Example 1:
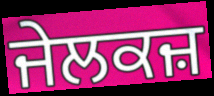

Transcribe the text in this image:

ਜੇਲਕਜ਼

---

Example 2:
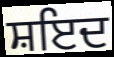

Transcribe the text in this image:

ਸ਼ਇਦ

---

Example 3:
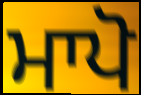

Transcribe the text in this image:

ਮਾਪੋ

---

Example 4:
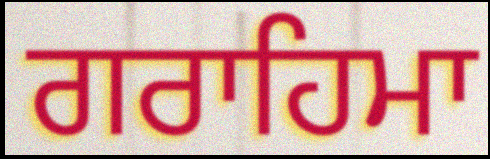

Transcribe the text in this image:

ਗਰਾਹਿਮਾ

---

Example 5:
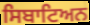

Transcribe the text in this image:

ਸਿਬਾਟਿਅਨ